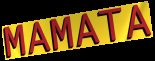
MAMATA